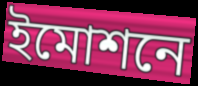
ইমোশনে